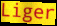
Liger